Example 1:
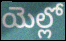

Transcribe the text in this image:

యెల్లో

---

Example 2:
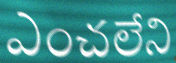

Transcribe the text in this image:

ఎంచలేని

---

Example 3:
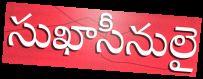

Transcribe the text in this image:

సుఖాసీనులై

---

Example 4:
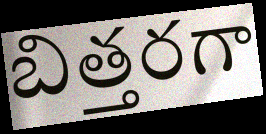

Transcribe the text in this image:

బిత్తరగా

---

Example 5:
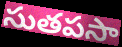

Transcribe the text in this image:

సుతపసా